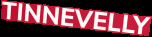
TINNEVELLY